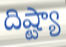
దిష్ట్యా